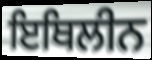
ਇਥਿਲੀਨ